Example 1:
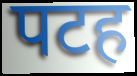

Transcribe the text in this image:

पटह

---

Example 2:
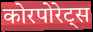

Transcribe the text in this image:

कोरपोरेट्स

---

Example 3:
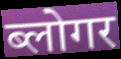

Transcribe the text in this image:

ब्लोगर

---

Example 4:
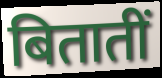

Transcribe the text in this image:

बितातीं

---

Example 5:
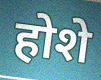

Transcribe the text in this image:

होशे